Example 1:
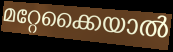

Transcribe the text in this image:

മറ്റേക്കൈയാൽ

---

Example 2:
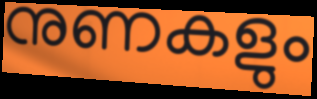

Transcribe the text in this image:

നുണകളും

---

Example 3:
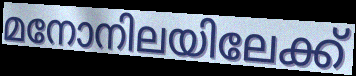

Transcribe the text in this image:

മനോനിലയിലേക്ക്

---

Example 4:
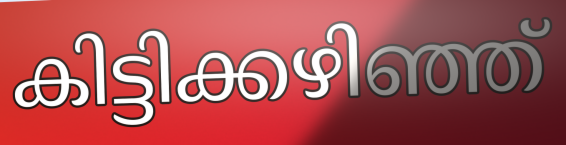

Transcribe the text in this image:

കിട്ടിക്കഴിഞ്ഞ്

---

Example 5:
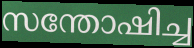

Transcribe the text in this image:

സന്തോഷിച്ച